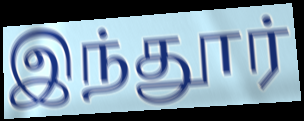
இந்தூர்